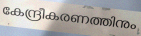
കേന്ദ്രീകരണത്തിനും